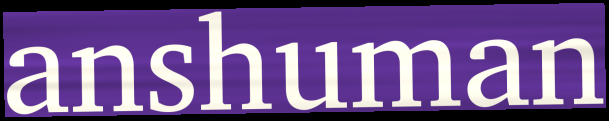
anshuman